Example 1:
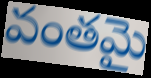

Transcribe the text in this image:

వంతమై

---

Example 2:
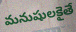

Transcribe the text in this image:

మనుషులకైతే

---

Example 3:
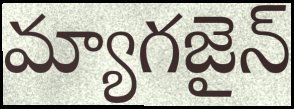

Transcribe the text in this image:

మ్యాగజైన్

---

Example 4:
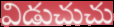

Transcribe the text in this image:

విడుచుచు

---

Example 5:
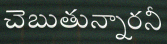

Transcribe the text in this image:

చెబుతున్నారనీ